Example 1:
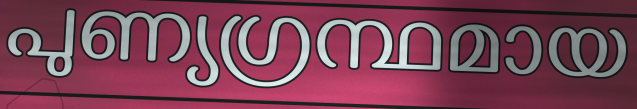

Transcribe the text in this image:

പുണ്യഗ്രന്ഥമായ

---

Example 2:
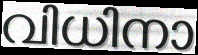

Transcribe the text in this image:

വിധിനാ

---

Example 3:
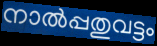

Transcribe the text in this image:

നാൽപ്പതുവട്ടം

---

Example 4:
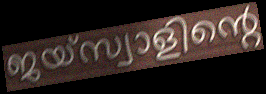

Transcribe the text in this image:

ജയ്സ്വാളിന്റെ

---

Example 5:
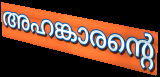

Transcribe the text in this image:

അഹങ്കാരന്റെ